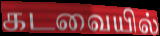
கடவையில்